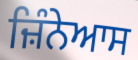
ਜ਼ਿੰਨੇਆਸ